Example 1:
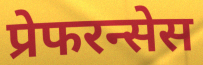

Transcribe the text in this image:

प्रेफरन्सेस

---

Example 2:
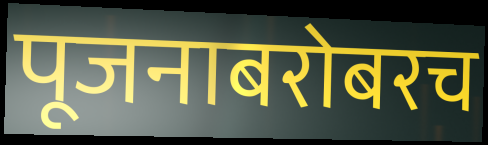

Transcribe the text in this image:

पूजनाबरोबरच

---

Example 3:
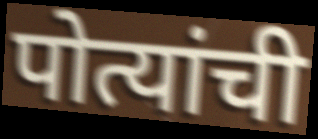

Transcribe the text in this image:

पोत्यांची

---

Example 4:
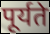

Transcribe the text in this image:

पूर्यते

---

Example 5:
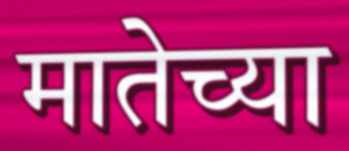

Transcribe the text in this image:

मातेच्या